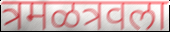
त्रमळत्रवला